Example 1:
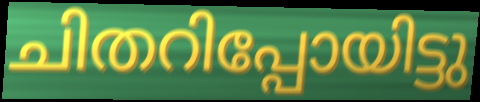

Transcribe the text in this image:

ചിതറിപ്പോയിട്ടു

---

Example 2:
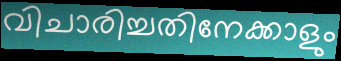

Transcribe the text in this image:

വിചാരിച്ചതിനേക്കാളും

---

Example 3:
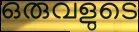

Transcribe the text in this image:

ഒരുവളുടെ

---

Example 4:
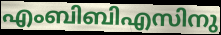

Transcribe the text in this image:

എംബിബിഎസിനു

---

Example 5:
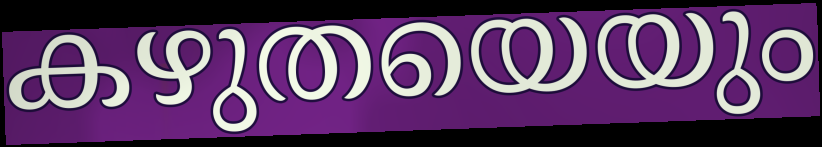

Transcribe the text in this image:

കഴുതയെയും